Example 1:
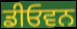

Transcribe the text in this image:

ਡੀਓਵਨ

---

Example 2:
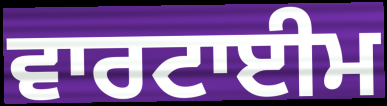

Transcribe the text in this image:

ਵਾਰਟਾਈਮ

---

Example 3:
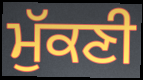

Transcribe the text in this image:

ਮੁੱਕਣੀ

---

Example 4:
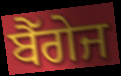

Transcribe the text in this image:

ਬੈੱਗੇਜ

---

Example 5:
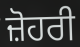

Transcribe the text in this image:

ਜ਼ੋਹਰੀ